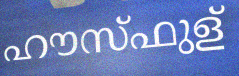
ഹൗസ്ഫുള്